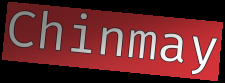
Chinmay